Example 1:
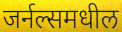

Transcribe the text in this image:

जर्नल्समधील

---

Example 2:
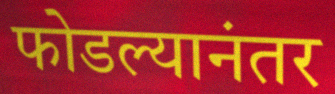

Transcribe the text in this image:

फोडल्यानंतर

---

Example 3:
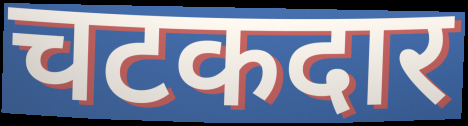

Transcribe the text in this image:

चटकदार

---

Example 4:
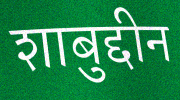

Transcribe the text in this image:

शाबुद्दीन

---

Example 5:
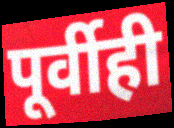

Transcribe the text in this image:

पूर्वीही